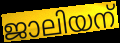
ജാലിയന്